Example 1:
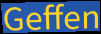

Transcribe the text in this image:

Geffen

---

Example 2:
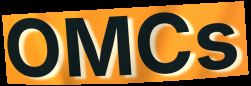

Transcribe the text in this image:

OMCs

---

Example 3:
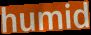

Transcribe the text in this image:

humid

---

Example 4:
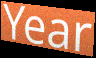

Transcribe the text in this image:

Year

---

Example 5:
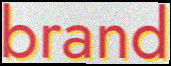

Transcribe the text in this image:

brand